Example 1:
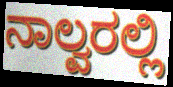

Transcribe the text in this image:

ನಾಲ್ವರಲ್ಲಿ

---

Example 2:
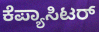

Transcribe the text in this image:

ಕೆಪ್ಯಾಸಿಟರ್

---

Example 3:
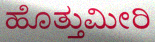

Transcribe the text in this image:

ಹೊತ್ತುಮೀರಿ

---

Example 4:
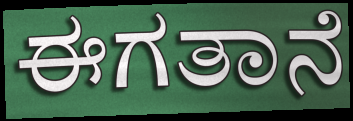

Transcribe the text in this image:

ಈಗತಾನೆ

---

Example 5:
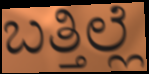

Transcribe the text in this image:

ಬತ್ತಿಲ್ಲೆ